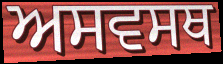
ਅਸਵਸਥ